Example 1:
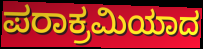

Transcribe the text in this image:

ಪರಾಕ್ರಮಿಯಾದ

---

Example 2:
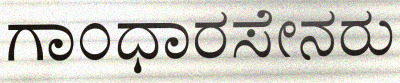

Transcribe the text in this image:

ಗಾಂಧಾರಸೇನರು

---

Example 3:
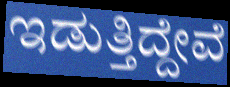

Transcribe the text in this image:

ಇಡುತ್ತಿದ್ದೇವೆ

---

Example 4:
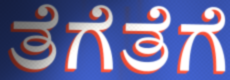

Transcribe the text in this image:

ತೆಗೆತೆಗೆ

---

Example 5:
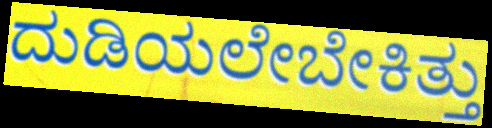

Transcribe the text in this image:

ದುಡಿಯಲೇಬೇಕಿತ್ತು